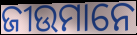
ଜୀଉମାନେ